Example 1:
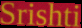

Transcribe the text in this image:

Srishti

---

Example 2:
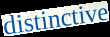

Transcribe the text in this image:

distinctive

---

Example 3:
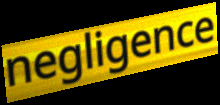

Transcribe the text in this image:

negligence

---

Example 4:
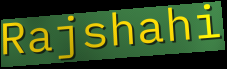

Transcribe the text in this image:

Rajshahi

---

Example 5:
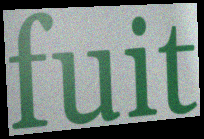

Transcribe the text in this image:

fuit